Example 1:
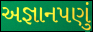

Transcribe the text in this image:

અજ્ઞાનપણું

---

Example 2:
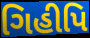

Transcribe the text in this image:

ગિહીપિ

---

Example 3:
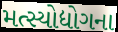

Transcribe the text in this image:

મત્સ્યોદ્યોગના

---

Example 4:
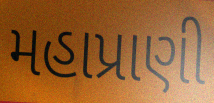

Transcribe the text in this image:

મહાપ્રાણી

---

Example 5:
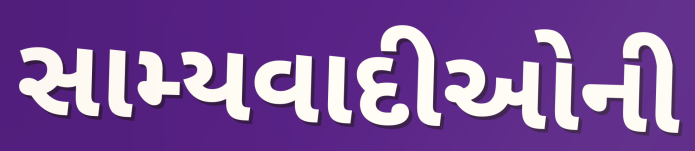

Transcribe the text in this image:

સામ્યવાદીઓની